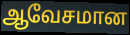
ஆவேசமான